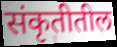
संकृतीतील